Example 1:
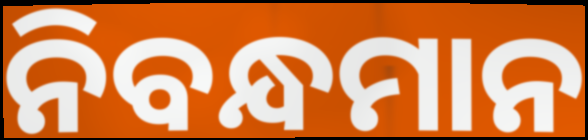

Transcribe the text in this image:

ନିବନ୍ଧମାନ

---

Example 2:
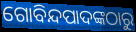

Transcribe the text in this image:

ଗୋବିନ୍ଦପାଦଙ୍କଠାରୁ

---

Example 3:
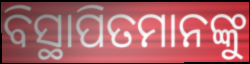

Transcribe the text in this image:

ବିସ୍ଥାପିତମାନଙ୍କୁ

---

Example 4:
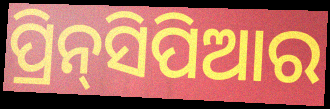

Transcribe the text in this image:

ପ୍ରିନ୍‌ସିପିଆର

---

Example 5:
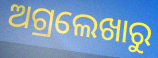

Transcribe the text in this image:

ଅଗ୍ରଲେଖାରୁ